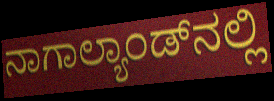
ನಾಗಾಲ್ಯಾಂಡ್‌ನಲ್ಲಿ